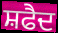
ਸ਼ਫੈਦ